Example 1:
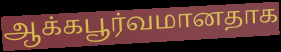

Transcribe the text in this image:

ஆக்கபூர்வமானதாக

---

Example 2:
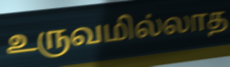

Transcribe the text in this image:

உருவமில்லாத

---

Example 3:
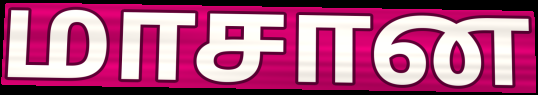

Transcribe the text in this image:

மாசான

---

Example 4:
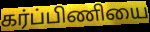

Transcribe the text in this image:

கர்ப்பிணியை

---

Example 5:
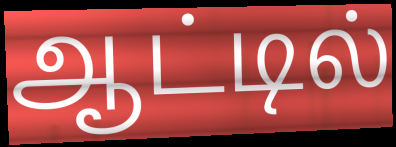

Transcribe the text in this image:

ஆட்டில்